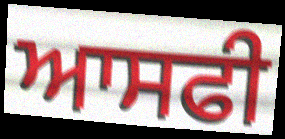
ਆਸਫੀ